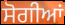
ਸੋਗੀਆਂ